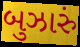
બુઝારું